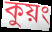
কুয়ং